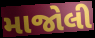
માજોલી